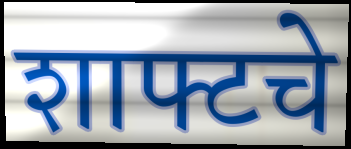
शाफ्टचे